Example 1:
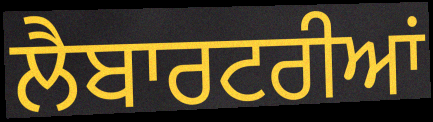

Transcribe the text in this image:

ਲੈਬਾਰਟਰੀਆਂ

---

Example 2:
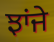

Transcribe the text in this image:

ਝਾਂਜੇ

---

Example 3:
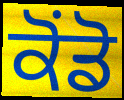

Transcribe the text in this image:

ਕੋਂਡੋ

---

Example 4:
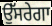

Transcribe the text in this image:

ਉੱਸਰੇਗਾ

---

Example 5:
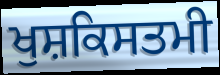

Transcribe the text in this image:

ਖੁਸ਼ਕਿਸਤਮੀ